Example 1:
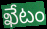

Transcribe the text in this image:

ఖేటం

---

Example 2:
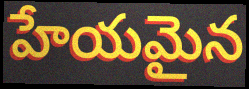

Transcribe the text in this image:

హేయమైన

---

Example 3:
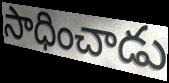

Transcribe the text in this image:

సాధించాడు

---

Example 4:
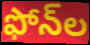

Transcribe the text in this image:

ఫోన్‌ల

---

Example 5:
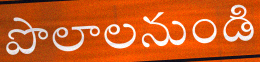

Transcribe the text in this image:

పొలాలనుండి